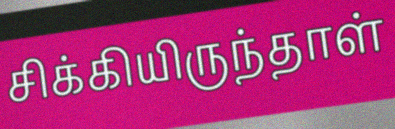
சிக்கியிருந்தாள்